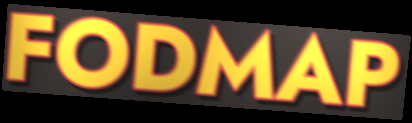
FODMAP